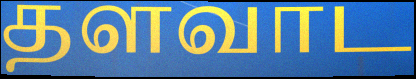
தளவாட